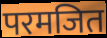
परमजित